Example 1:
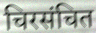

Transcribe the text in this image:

चिरसंचित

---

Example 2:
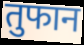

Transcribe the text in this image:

तुफान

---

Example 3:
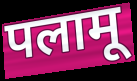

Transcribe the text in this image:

पलामू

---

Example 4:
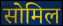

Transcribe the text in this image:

सोमिल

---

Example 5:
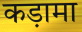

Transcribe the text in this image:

कड़ामा